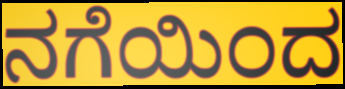
ನಗೆಯಿಂದ